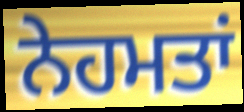
ਨੇਹਮਤਾਂ